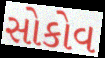
સોકોવ